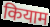
कियाम